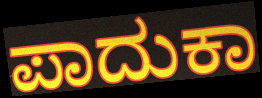
ಪಾದುಕಾ